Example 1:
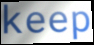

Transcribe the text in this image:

keep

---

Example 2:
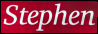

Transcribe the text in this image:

Stephen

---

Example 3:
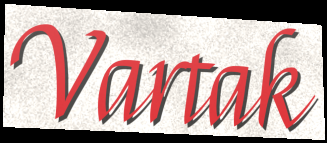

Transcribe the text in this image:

Vartak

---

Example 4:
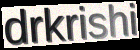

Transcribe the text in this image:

drkrishi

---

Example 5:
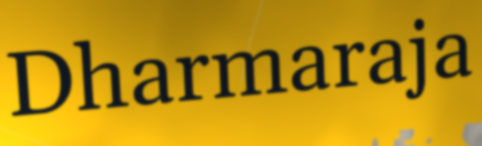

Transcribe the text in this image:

Dharmaraja